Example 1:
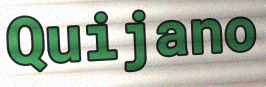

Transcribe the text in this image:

Quijano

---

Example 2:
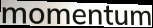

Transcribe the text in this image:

momentum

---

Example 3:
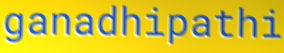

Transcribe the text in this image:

ganadhipathi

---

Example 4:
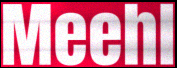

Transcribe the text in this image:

Meehl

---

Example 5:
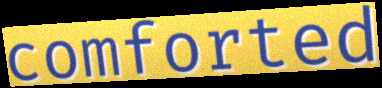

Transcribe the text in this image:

comforted